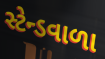
સ્ટેન્ડવાળા